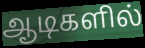
ஆடிகளில்